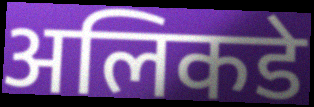
अलिकडे